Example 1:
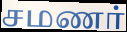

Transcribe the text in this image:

சமணர்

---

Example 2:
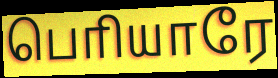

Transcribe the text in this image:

பெரியாரே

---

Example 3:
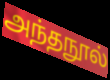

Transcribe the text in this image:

அந்தநூல்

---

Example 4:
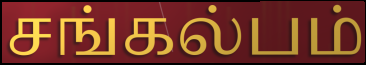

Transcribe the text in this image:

சங்கல்பம்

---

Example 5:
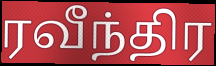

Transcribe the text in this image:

ரவீந்திர